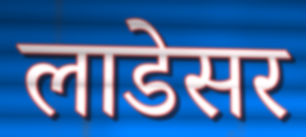
लाडेसर